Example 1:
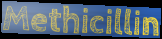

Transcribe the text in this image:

Methicillin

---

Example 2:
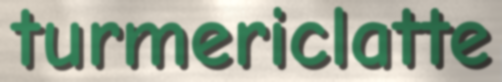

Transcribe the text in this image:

turmericlatte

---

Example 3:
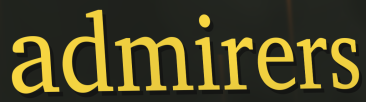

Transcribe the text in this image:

admirers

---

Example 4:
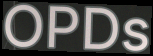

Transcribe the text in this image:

OPDs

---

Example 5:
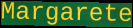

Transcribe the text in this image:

Margarete